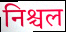
निश्चल